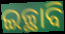
ଇଚ୍ଛାବି